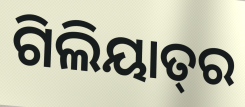
ଗିଲିୟାତ୍‍ର